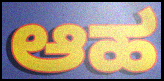
ಆಹ